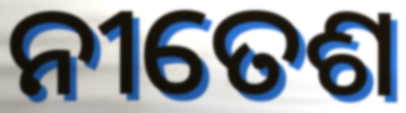
ନୀତେଶ